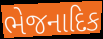
ભેજનાદિક